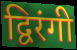
द्विरंगी